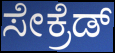
ಸೇಕ್ರೆಡ್